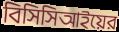
বিসিসিআইয়ের